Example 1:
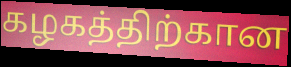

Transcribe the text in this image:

கழகத்திற்கான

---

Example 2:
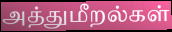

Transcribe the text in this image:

அத்துமீறல்கள்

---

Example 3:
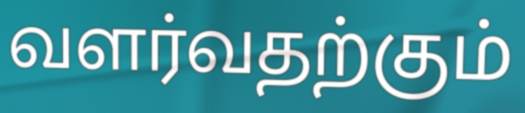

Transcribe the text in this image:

வளர்வதற்கும்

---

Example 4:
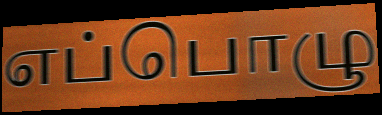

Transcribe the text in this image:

எப்பொழு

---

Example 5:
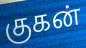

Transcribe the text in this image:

குகன்